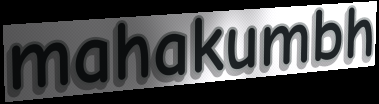
mahakumbh